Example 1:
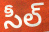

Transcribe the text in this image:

సీల్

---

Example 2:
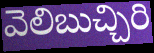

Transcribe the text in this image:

వెలిబుచ్చిరి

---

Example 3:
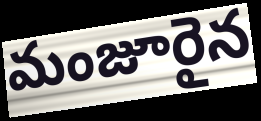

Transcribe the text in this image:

మంజూరైన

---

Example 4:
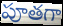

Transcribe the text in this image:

పూతగా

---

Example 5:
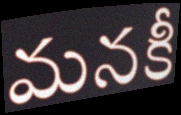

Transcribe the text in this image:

మనకీ